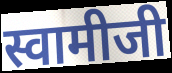
स्वामीजी